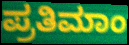
ಪ್ರತಿಮಾಂ